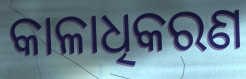
କାଳାଧିକରଣ